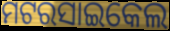
ମଟରସାଇକେଲ